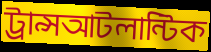
ট্রান্সআটলান্টিক